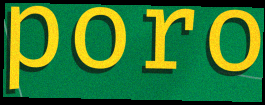
poro